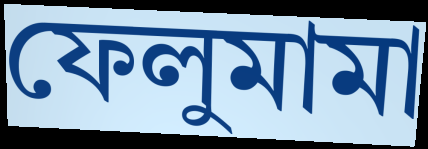
ফেলুমামা